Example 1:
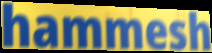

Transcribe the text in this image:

hammesh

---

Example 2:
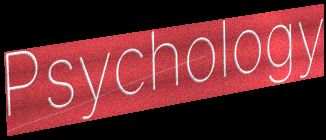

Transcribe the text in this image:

Psychology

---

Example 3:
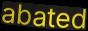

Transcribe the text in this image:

abated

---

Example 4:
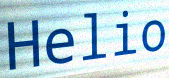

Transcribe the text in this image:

Helio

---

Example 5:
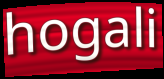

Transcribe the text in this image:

hogali